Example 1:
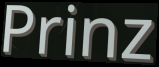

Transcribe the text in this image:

Prinz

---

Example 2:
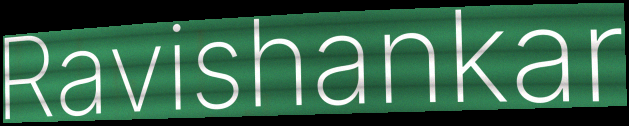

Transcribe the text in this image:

Ravishankar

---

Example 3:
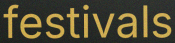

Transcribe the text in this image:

festivals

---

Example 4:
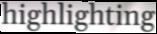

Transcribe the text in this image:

highlighting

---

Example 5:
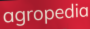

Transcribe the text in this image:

agropedia